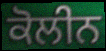
ਕੋਲੀਨ